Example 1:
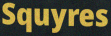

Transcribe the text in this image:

Squyres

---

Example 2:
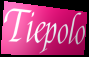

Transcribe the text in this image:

Tiepolo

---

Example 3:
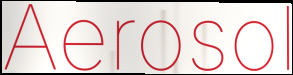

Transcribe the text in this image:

Aerosol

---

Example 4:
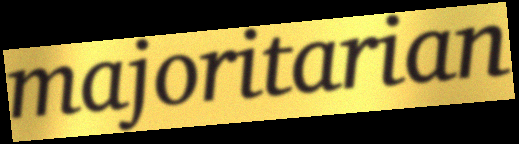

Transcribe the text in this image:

majoritarian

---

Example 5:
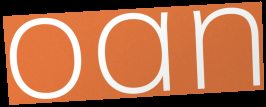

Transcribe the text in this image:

oan